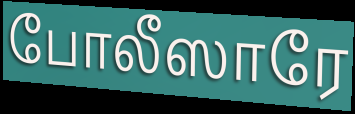
போலீஸாரே